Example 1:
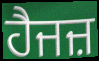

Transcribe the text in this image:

ਹੈਜਜ਼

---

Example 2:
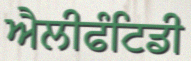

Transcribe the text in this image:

ਐਲੀਫੰਟਿਡੀ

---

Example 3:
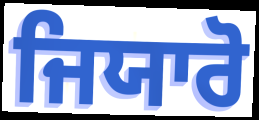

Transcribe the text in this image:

ਜਿਯਾਰੋ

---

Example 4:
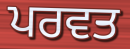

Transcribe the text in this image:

ਪਰਵਤ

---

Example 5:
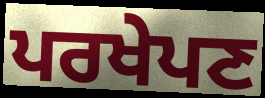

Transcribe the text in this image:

ਪਰਖੇਪਣ